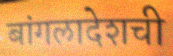
बांगलादेशची